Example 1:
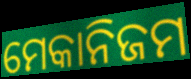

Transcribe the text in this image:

ମେକାନିଜମ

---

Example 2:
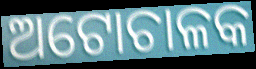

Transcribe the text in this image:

ଅଟୋଚାଳକ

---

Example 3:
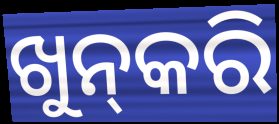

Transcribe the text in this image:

ଖୁନ୍‍କରି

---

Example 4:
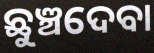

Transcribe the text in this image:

ଛୁଞ୍ଚଦେବା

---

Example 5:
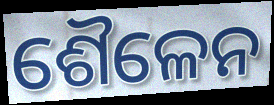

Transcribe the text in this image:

ଶୈଳେନ